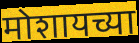
मोशायच्या